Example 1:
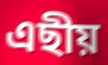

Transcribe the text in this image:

এছীয়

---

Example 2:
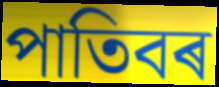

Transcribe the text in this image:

পাতিবৰ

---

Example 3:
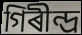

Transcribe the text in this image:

গিৰীন্দ্ৰ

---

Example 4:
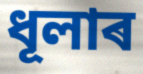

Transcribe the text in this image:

ধূলাৰ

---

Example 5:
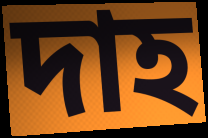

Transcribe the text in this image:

দাহ